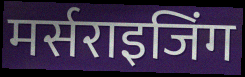
मर्सराइजिंग